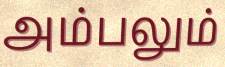
அம்பலும்